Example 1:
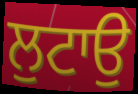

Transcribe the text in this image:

ਲੁਟਾਉ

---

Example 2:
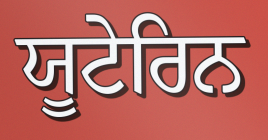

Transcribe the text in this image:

ਯੂਟੇਰਿਨ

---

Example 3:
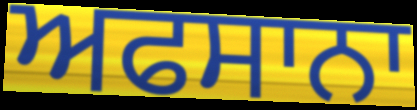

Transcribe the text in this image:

ਅਫਸਾਨਾ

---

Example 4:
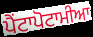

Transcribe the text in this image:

ਪੈਂਟਾਪੋਟਾਮੀਆ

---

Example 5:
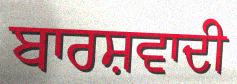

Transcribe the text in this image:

ਬਾਰਸ਼ਵਾਦੀ